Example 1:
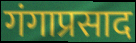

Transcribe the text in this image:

गंगाप्रसाद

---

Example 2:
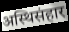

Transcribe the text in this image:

अस्थिसंहार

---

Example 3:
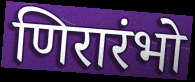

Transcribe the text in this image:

णिरारंभो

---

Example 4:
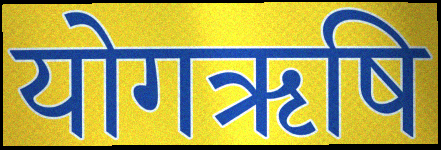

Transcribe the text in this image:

योगऋषि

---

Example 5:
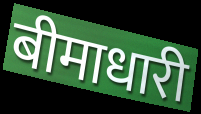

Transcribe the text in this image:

बीमाधारी